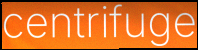
centrifuge